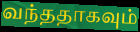
வந்ததாகவும்